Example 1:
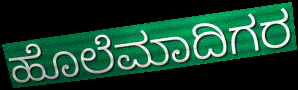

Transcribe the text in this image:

ಹೊಲೆಮಾದಿಗರ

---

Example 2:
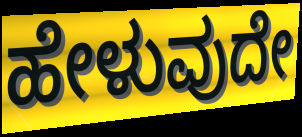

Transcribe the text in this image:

ಹೇಳುವುದೇ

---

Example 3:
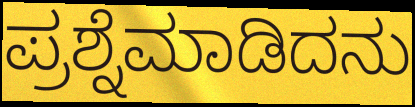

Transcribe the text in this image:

ಪ್ರಶ್ನೆಮಾಡಿದನು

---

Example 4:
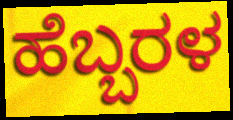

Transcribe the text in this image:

ಹೆಬ್ಬರಳ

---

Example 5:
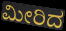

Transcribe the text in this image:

ಮೀರಿದ